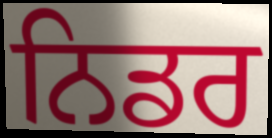
ਨਿਡਰ